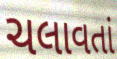
ચલાવતાં